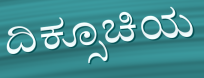
ದಿಕ್ಸೂಚಿಯ